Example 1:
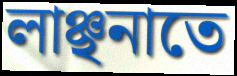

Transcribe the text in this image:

লাঞ্ছনাতে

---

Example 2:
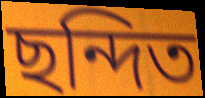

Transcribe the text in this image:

ছন্দিত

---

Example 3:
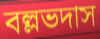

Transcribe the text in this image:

বল্লভদাস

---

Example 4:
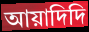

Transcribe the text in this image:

আয়াদিদি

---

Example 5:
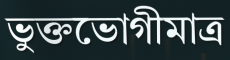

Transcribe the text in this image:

ভুক্তভোগীমাত্র